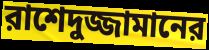
রাশেদুজ্জামানের